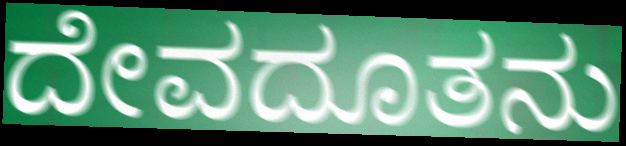
ದೇವದೂತನು